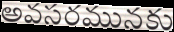
అవసరమునకు